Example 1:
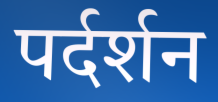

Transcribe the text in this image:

पर्दर्शन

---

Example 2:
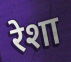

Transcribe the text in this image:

रेशा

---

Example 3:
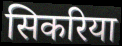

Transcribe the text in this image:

सिकरिया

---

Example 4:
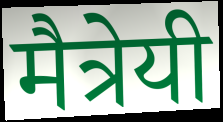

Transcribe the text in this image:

मैत्रेयी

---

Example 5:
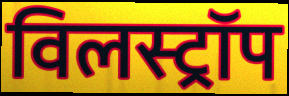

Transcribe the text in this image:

विलस्ट्रॉप